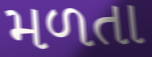
મળતા